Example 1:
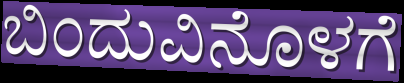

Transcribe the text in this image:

ಬಿಂದುವಿನೊಳಗೆ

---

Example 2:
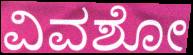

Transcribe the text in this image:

ವಿವಶೋ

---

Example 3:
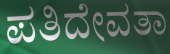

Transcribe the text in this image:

ಪತಿದೇವತಾ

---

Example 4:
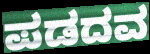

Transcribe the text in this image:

ಪಡದವ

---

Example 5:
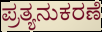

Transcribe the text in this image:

ಪ್ರತ್ಯನುಕರಣೆ